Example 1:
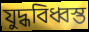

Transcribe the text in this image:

যুদ্ধবিধ্বস্ত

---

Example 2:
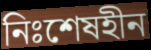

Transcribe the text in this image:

নিঃশেষহীন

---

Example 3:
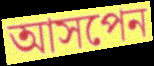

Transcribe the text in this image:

আসপেন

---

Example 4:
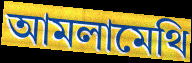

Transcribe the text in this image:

আমলামেথি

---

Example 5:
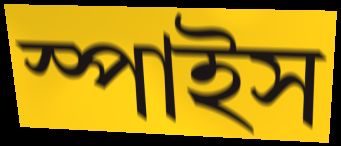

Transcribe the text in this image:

স্পাইস